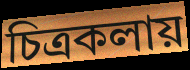
চিত্রকলায়